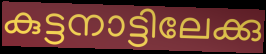
കുട്ടനാട്ടിലേക്കു